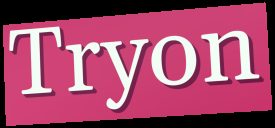
Tryon